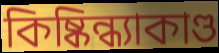
কিষ্কিন্ধ্যাকাণ্ড